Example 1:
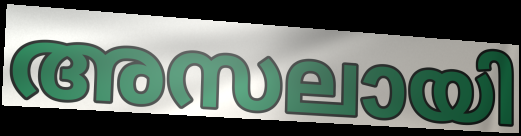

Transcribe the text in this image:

അസലായി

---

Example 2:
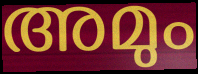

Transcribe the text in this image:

അമും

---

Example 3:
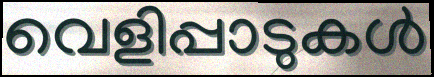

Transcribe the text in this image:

വെളിപ്പാടുകൾ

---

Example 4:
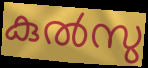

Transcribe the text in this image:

കുൽസു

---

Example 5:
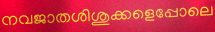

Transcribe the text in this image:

നവജാതശിശുക്കളെപ്പോലെ